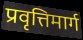
प्रवृत्तिमार्ग